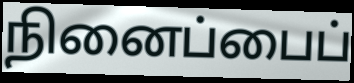
நினைப்பைப்